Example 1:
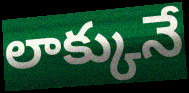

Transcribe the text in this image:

లాక్కునే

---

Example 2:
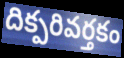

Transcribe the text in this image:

దిక్పరివర్తకం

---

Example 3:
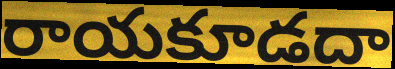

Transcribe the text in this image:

రాయకూడదా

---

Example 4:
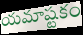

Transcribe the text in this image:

యమాష్టకం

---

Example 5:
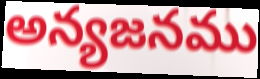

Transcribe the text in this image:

అన్యజనము